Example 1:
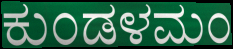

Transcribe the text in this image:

ಕುಂಡಳಮಂ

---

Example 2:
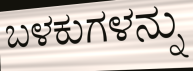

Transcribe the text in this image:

ಬಳಕುಗಳನ್ನು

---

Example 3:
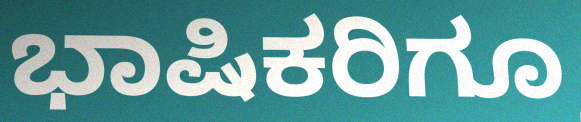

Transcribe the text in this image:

ಭಾಷಿಕರಿಗೂ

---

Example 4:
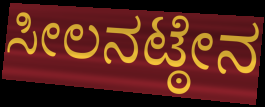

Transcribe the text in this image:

ಸೀಲನಟ್ಠೇನ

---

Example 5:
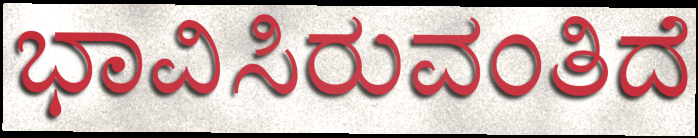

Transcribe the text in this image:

ಭಾವಿಸಿರುವಂತಿದೆ